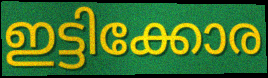
ഇട്ടിക്കോര